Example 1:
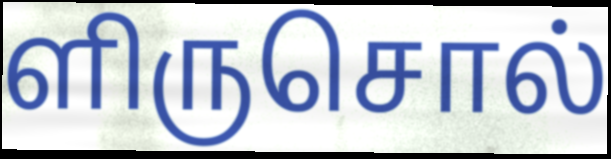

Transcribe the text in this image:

ளிருசொல்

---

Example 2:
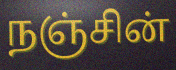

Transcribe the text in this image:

நஞ்சின்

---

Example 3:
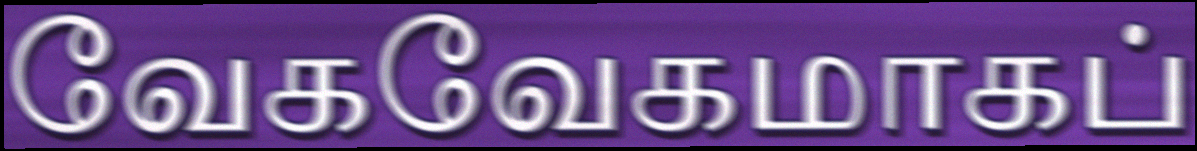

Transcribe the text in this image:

வேகவேகமாகப்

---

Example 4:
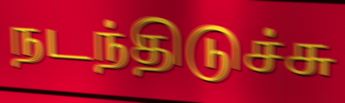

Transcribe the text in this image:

நடந்திடுச்சு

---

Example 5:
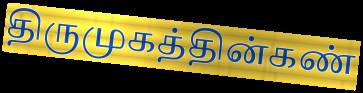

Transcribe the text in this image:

திருமுகத்தின்கண்